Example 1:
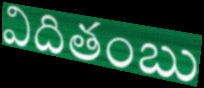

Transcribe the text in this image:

విదితంబు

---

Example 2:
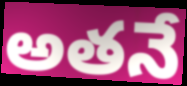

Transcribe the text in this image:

అతనే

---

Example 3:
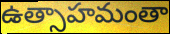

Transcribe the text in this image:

ఉత్సాహమంతా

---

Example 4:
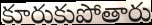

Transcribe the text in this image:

కూరుకుపోతారు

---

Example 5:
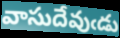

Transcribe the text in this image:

వాసుదేవుఁడు